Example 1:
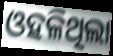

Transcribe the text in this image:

ଓହଳିଥିଲା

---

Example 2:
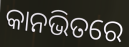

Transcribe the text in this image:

କାନଭିତରେ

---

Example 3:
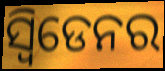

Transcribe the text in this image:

ସ୍ୱିଡେନର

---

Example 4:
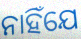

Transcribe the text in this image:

ନାହିଁଯେ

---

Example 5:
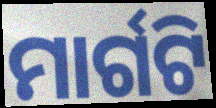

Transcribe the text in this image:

ମାର୍ଗଟି